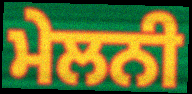
ਮੇਲਨੀ